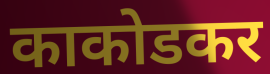
काकोडकर